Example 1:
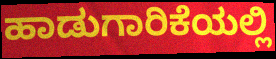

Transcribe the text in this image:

ಹಾಡುಗಾರಿಕೆಯಲ್ಲಿ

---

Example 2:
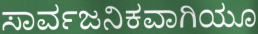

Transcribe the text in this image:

ಸಾರ್ವಜನಿಕವಾಗಿಯೂ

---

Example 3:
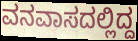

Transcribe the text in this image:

ವನವಾಸದಲ್ಲಿದ್ದ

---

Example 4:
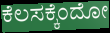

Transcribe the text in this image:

ಕೆಲಸಕ್ಕೆಂದೋ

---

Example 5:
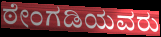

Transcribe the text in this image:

ಠೇಂಗಡಿಯವರು